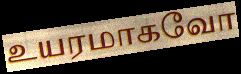
உயரமாகவோ